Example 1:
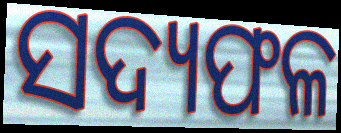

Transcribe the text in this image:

ସଦ୍ୟଫଳ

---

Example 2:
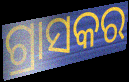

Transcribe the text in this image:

ଗ୍ରାସକର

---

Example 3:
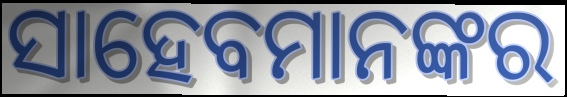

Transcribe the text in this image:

ସାହେବମାନଙ୍କର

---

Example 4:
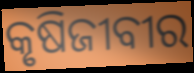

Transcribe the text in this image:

କୃଷିଜୀବୀର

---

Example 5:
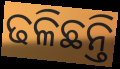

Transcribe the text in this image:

ଢଳିଛନ୍ତି